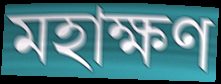
মহাক্ষণ